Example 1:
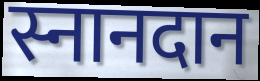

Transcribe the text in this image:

स्नानदान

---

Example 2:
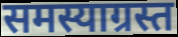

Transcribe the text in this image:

समस्याग्रस्त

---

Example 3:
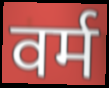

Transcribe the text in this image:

वर्म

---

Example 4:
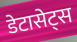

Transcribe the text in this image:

डेटासेट्स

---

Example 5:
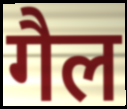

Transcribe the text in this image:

गैल